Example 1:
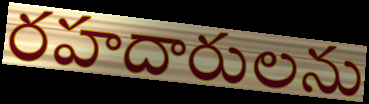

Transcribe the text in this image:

రహదారులను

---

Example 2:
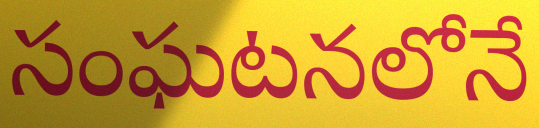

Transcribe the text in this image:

సంఘటనలోనే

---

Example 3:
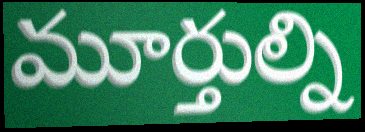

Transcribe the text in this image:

మూర్తుల్ని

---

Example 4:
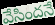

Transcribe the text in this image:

వేసిందనే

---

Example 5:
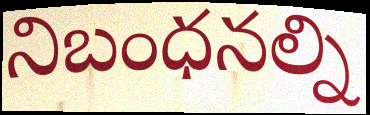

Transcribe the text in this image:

నిబంధనల్ని